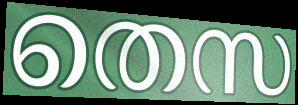
തെസ